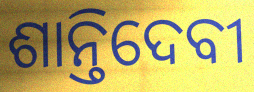
ଶାନ୍ତିଦେବୀ